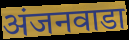
अंजनवाडा